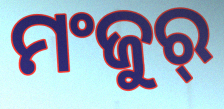
ମଂଜୁର୍